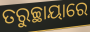
ତରୁଚ୍ଛାୟାରେ